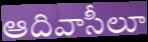
ఆదివాసీలూ